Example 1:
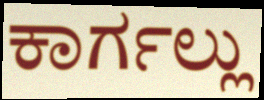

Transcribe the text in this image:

ಕಾರ್ಗಲ್ಲು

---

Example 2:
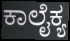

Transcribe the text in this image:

ಕಾಲೈಕ್ಯ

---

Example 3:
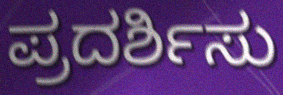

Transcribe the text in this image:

ಪ್ರದರ್ಶಿಸು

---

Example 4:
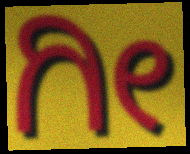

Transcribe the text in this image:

ಗೀ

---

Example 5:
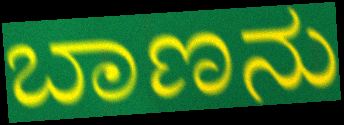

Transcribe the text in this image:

ಬಾಣನು